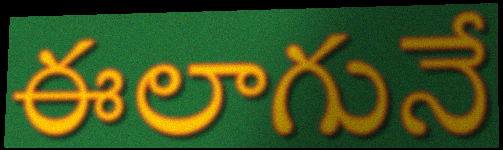
ఈలాగునే